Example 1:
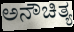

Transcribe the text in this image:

ಅನೌಚಿತ್ಯ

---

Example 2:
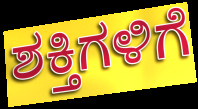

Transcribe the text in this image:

ಶಕ್ತಿಗಳಿಗೆ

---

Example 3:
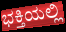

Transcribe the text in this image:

ಭಕ್ತಿಯಲ್ಲಿ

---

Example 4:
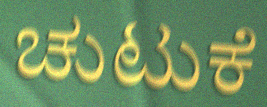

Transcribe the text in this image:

ಚುಟುಕೆ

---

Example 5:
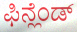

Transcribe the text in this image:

ಫಿನ್ಲೆಂಡ್